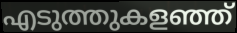
എടുത്തുകളഞ്ഞ്